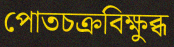
পোতচক্রবিক্ষুব্ধ